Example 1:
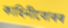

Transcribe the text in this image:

কাহিনীবোৰৰ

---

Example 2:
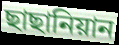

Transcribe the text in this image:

ছাছানিয়ান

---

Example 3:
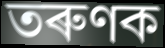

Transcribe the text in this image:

তৰুণক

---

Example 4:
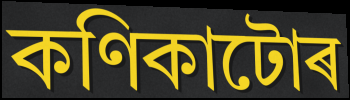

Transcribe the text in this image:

কণিকাটোৰ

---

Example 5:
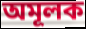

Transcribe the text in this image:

অমূলক